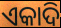
ଏକାଦି